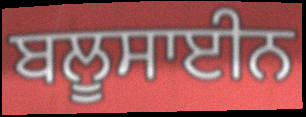
ਬਲੂਸਾਈਨ